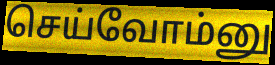
செய்வோம்னு